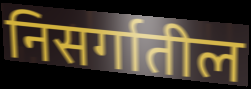
निसर्गातील